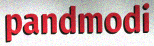
pandmodi